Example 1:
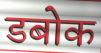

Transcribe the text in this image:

डबोक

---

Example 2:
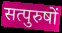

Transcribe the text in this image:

सत्पुरुषों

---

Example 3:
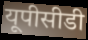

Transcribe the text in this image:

यूपीसीडी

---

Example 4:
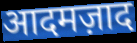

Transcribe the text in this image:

आदमज़ाद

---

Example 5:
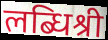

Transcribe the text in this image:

लब्धिश्री